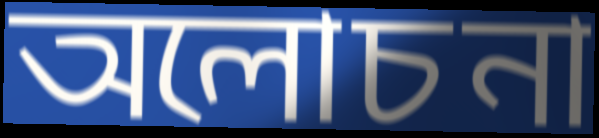
অলোচনা